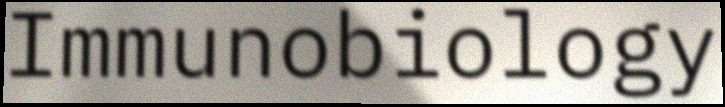
Immunobiology